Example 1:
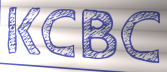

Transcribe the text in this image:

KCBC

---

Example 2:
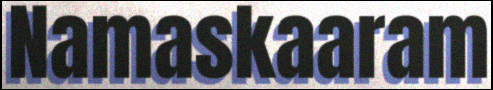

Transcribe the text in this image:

Namaskaaram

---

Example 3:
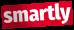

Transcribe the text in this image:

smartly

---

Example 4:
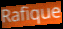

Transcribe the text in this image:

Rafique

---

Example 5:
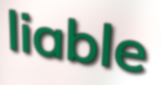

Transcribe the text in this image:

liable